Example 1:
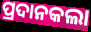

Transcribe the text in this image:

ପ୍ରଦାନକଲା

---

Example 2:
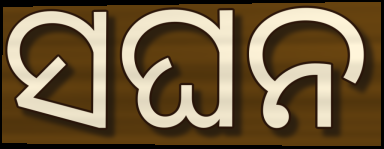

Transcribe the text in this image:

ସଘନ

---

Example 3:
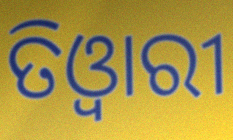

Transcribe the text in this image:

ତିଓ୍ଵାରୀ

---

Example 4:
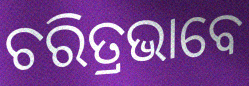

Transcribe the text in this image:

ଚରିତ୍ରଭାବେ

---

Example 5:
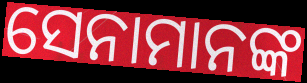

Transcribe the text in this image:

ସେନାମାନଙ୍କ